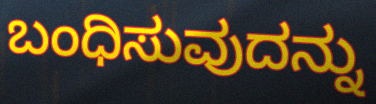
ಬಂಧಿಸುವುದನ್ನು